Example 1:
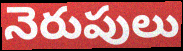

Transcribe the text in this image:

నెరుపులు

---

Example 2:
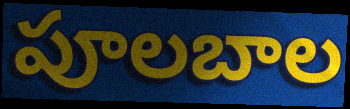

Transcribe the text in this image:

పూలబాల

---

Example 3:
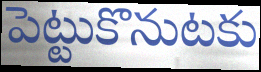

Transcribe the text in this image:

పెట్టుకొనుటకు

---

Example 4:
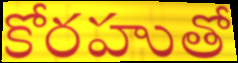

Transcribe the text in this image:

కోరహుతో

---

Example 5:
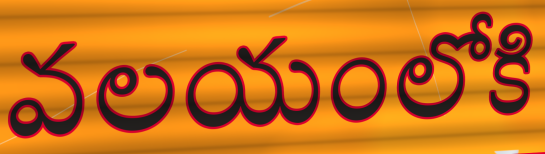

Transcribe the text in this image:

వలయంలోకి